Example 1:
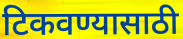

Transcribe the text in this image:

टिकवण्यासाठी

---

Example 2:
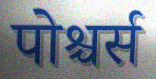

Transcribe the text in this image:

पोश्चर्स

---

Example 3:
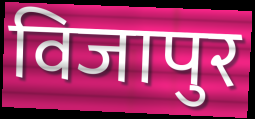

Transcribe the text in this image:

विजापुर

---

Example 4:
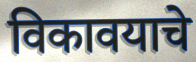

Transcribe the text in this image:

विकावयाचे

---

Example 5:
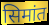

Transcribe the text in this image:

सिमांत